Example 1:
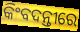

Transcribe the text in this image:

କିଂବଦନ୍ତୀରେ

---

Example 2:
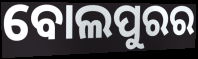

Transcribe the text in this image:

ବୋଲପୁରର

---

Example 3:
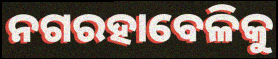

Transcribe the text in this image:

ନଗରହାବେଳିକୁ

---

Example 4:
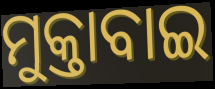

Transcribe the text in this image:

ମୁକ୍ତାବାଇ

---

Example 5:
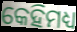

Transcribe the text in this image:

କେହିମଧ୍ୟ